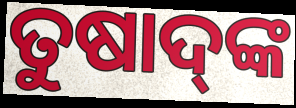
ତୁଷାଦ୍‌ଙ୍କ